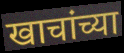
खाचांच्या